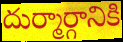
దుర్మార్గానికి